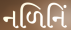
નળિનિં